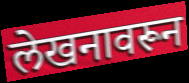
लेखनावरून